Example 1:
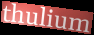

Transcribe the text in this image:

thulium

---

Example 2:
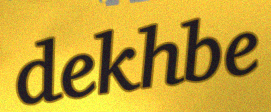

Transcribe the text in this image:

dekhbe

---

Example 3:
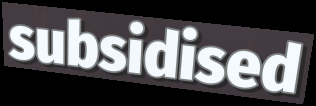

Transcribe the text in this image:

subsidised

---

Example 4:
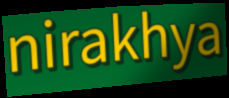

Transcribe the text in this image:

nirakhya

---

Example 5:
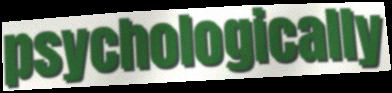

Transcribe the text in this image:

psychologically